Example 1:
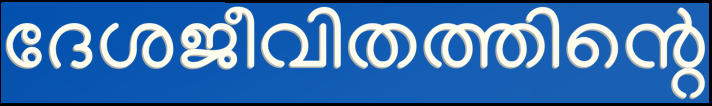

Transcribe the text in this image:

ദേശജീവിതത്തിന്റെ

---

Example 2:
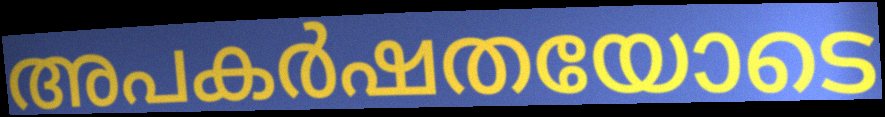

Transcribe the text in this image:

അപകർഷതയോടെ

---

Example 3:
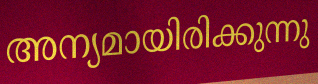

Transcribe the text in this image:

അന്യമായിരിക്കുന്നു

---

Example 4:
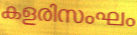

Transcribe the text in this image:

കളരിസംഘം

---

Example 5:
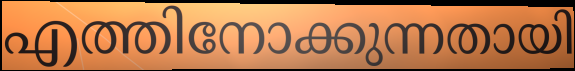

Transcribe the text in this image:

എത്തിനോക്കുന്നതായി